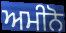
ਅਮੀਨੋ